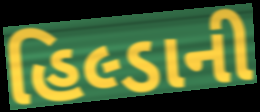
હિલ્ડાની